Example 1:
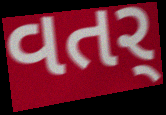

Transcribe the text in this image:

વતર્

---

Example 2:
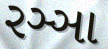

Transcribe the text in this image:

રઞ્ઞા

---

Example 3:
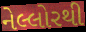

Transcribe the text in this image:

નેલ્લોરથી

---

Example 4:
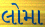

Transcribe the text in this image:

લોમા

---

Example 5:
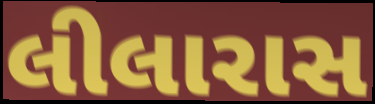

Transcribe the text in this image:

લીલારાસ